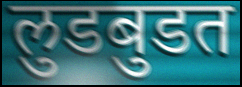
लुडबुडत